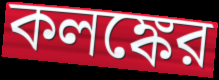
কলঙ্কের